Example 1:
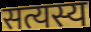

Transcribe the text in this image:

सत्यस्य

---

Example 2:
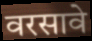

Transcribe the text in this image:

वरसावे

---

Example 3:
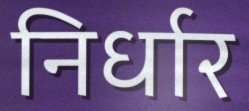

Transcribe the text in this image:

निर्धार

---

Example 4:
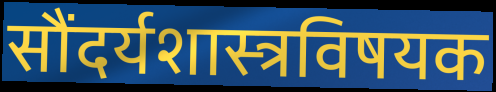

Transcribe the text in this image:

सौंदर्यशास्त्रविषयक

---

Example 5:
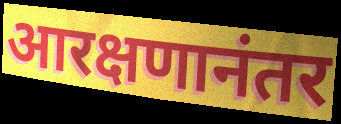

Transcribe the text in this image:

आरक्षणानंतर